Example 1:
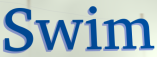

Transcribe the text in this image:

Swim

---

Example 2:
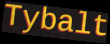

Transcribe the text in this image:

Tybalt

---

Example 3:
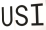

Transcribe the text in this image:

USI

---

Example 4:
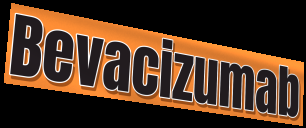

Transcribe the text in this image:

Bevacizumab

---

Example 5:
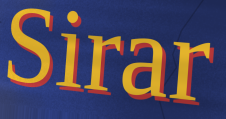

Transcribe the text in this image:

Sirar